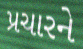
પ્રચારને